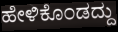
ಹೇಳಿಕೊಂಡದ್ದು